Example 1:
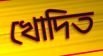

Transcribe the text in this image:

খোদিত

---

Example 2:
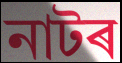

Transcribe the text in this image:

নাটৰ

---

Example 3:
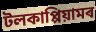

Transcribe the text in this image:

টলকাপ্পিয়ামৰ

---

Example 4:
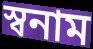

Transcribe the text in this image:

স্বনাম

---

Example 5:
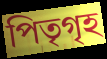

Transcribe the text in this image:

পিতৃগৃহ